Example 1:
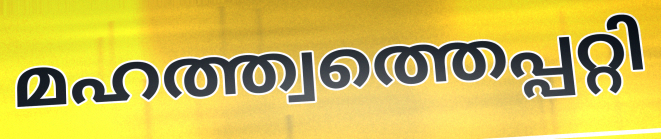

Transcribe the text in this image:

മഹത്ത്വത്തെപ്പറ്റി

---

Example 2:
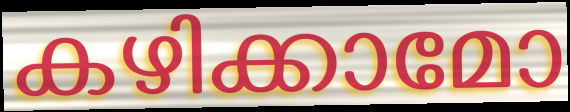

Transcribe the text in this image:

കഴിക്കാമോ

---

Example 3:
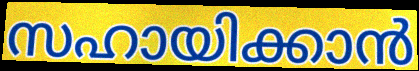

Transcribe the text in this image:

സഹായിക്കാൻ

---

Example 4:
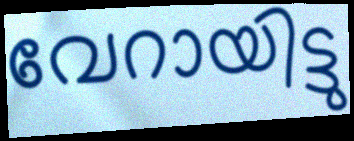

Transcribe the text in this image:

വേറായിട്ടു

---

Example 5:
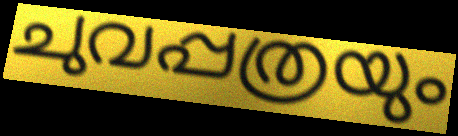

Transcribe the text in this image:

ചുവപ്പത്രയും